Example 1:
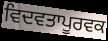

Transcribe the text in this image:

ਵਿਦਵਤਾਪੂਰਵਕ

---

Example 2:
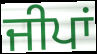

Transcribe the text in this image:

ਜੀਪਾਂ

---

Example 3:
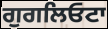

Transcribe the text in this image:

ਗੁਗਲਿਓਟਾ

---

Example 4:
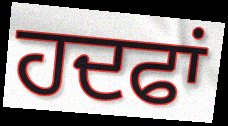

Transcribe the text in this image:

ਹਦਫਾਂ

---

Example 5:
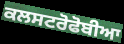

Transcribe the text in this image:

ਕਲਸਟਰੋਫੋਬੀਆ